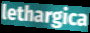
lethargica